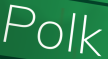
Polk